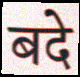
बदे